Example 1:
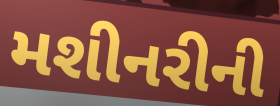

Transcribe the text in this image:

મશીનરીની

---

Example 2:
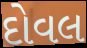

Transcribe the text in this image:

દોવલ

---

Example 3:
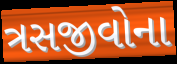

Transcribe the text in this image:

ત્રસજીવોના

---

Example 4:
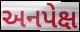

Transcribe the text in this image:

અનપેક્ષ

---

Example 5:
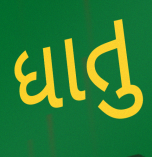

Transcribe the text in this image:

ધાતુ